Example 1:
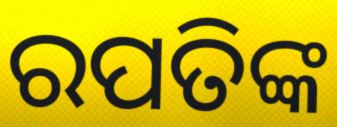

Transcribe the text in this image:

ରପତିଙ୍କ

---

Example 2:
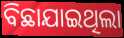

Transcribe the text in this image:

ବିଛାଯାଇଥିଲା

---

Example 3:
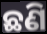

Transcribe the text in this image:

ଛଣି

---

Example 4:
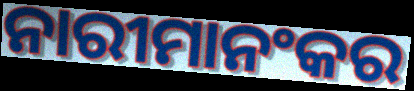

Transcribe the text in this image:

ନାରୀମାନଂକର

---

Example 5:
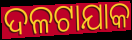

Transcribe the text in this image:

ଦଳଟାଯାକ